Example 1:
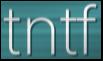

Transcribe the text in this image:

tntf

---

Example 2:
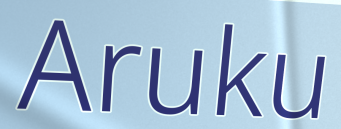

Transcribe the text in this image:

Aruku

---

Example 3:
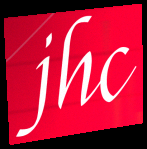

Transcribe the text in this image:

jhc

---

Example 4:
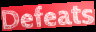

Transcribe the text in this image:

Defeats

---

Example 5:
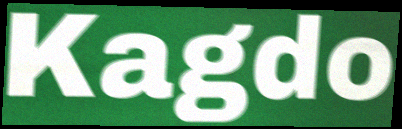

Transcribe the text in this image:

Kagdo